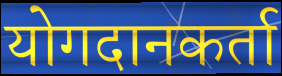
योगदानकर्ता